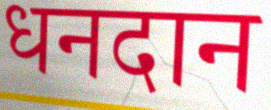
धनदान